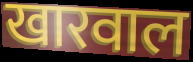
खारवाल